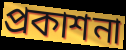
প্রকাশনা